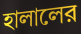
হালালের